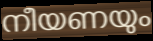
നീയണയും